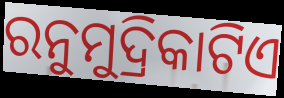
ରନୁମୁଦ୍ରିକାଟିଏ